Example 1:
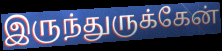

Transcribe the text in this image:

இருந்துருக்கேன்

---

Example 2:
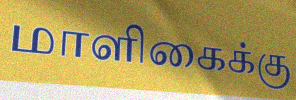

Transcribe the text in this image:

மாளிகைக்கு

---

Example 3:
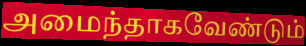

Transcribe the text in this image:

அமைந்தாகவேண்டும்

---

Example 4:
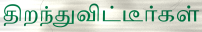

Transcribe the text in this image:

திறந்துவிட்டீர்கள்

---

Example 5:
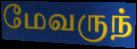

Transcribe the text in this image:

மேவருந்